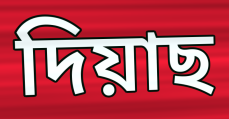
দিয়াছ